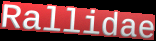
Rallidae